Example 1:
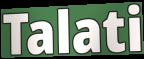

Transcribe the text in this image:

Talati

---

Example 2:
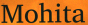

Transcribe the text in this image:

Mohita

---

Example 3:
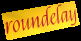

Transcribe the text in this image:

roundelay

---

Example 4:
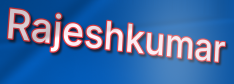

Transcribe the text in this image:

Rajeshkumar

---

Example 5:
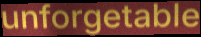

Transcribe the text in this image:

unforgetable